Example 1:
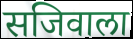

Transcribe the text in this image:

सजिवाला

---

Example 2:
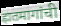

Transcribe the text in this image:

हातमागांची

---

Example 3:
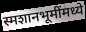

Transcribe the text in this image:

स्मशानभूमींमध्ये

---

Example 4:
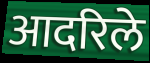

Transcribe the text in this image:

आदरिले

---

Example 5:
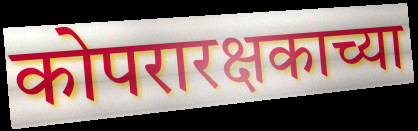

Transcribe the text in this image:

कोपरारक्षकाच्या